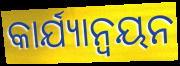
କାର୍ଯ୍ୟାନ୍ବୟନ